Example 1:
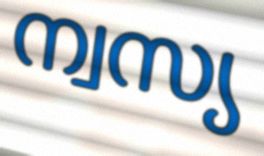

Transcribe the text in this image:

ന്വസ്യ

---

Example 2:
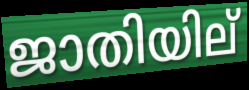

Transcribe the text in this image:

ജാതിയില്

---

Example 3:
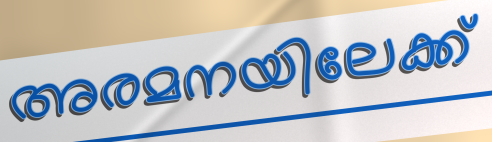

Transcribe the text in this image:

അരമനയിലേക്ക്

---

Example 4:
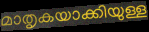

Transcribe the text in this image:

മാതൃകയാക്കിയുള്ള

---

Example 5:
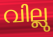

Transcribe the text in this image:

വില്ലു